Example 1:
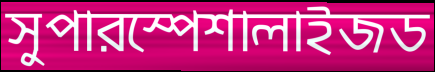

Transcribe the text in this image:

সুপারস্পেশালাইজড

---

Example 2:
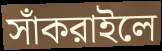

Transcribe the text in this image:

সাঁকরাইলে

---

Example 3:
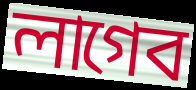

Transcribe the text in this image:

লাগেব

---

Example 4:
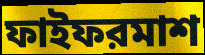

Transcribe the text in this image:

ফাইফরমাশ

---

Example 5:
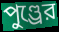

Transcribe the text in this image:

পুণ্ড্রের